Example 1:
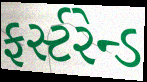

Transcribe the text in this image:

ફર્સ્ટરેન્ડ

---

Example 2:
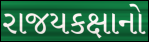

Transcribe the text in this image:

રાજયકક્ષાનો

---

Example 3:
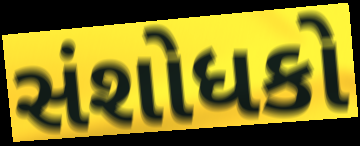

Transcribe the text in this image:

સંશોધકો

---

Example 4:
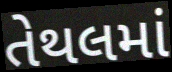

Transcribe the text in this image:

તેથલમાં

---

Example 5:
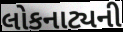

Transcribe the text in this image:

લોકનાટ્યની